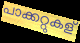
പാക്കറ്റുകള്